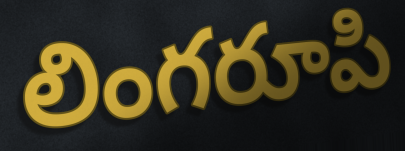
లింగరూపి